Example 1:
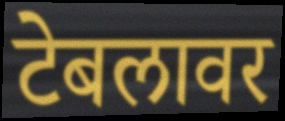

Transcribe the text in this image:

टेबलावर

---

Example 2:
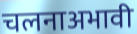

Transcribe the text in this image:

चलनाअभावी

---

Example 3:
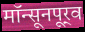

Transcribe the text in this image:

मॉन्सूनपूर्व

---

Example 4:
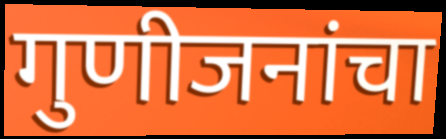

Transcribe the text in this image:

गुणीजनांचा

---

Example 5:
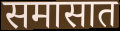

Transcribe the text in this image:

समासात